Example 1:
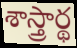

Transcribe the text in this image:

శాస్త్రార్థ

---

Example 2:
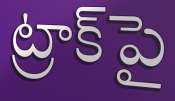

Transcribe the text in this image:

ట్రాక్‌పై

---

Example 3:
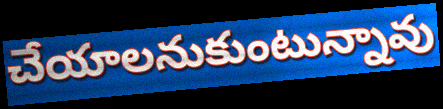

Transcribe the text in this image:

చేయాలనుకుంటున్నావు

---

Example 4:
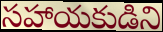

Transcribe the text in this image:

సహాయకుడిని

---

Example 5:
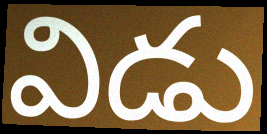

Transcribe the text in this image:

విడు